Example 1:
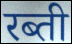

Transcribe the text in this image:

रब्ती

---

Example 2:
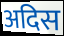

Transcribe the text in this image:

अदिस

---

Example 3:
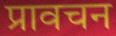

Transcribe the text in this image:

प्रावचन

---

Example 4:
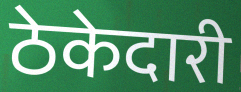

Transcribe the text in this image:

ठेकेदारी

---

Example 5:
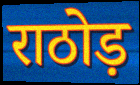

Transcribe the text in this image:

राठोड़